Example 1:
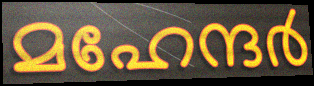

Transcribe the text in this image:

മഹേന്ദർ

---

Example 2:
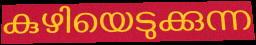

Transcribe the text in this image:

കുഴിയെടുക്കുന്ന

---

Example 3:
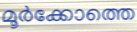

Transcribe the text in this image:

മൂർക്കോത്തെ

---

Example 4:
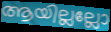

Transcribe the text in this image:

ആയില്ലല്ലോ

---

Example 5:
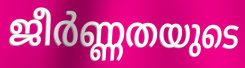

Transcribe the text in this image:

ജീർണ്ണതയുടെ